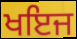
ਖਇਜ